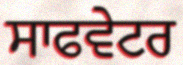
ਸਾਫਵੇਟਰ